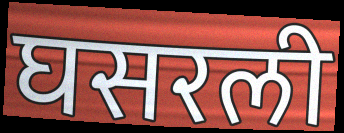
घसरली